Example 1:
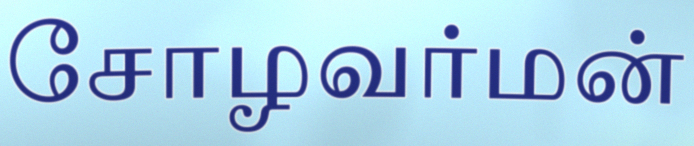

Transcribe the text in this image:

சோழவர்மன்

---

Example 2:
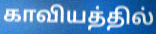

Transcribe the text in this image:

காவியத்தில்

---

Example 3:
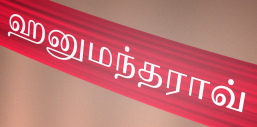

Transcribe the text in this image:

ஹனுமந்தராவ்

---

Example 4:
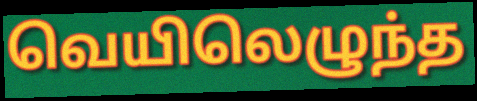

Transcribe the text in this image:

வெயிலெழுந்த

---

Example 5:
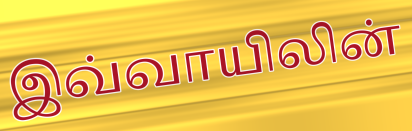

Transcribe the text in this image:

இவ்வாயிலின்